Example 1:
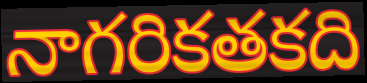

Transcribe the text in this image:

నాగరికతకది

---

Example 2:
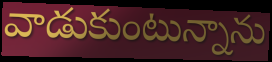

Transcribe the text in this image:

వాడుకుంటున్నాను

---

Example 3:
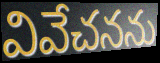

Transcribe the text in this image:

వివేచనను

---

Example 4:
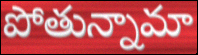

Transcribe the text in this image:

పోతున్నామా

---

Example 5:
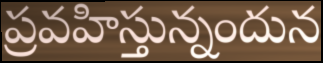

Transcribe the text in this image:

ప్రవహిస్తున్నందున